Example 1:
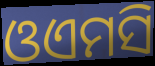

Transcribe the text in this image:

ଓଏମସି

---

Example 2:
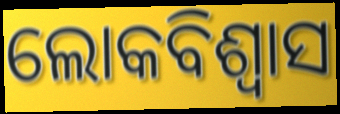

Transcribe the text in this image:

ଲୋକବିଶ୍ୱାସ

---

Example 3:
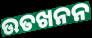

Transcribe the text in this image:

ଉତଖନନ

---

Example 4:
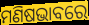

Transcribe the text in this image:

ମଣିଷଭାବରେ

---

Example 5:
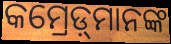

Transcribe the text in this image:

କମ୍ରେଡ଼୍‍ମାନଙ୍କ